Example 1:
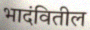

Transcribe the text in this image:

भादंवितील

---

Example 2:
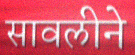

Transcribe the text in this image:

सावलीने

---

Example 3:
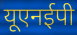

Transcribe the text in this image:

यूएनईपी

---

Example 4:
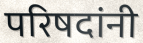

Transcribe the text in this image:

परिषदांनी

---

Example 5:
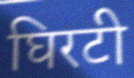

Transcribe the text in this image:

घिरटी